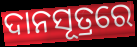
ଦାନସୂତ୍ରରେ